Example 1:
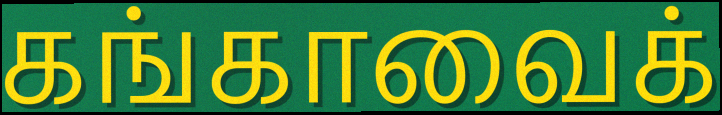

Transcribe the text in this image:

கங்காவைக்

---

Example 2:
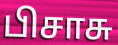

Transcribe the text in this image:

பிசாசு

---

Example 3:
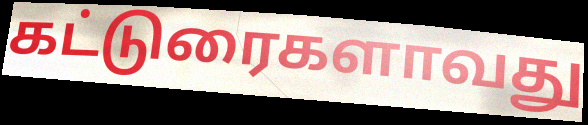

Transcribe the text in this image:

கட்டுரைகளாவது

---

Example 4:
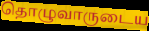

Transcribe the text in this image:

தொழுவாருடைய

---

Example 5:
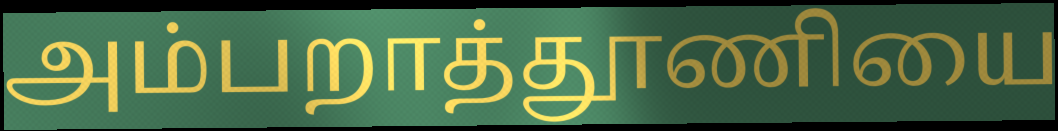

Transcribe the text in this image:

அம்பறாத்தூணியை